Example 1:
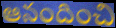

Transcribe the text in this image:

ఆనందించి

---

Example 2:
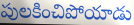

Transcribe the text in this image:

పులకించిపోయాడు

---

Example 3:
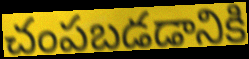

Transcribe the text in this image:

చంపబడడానికి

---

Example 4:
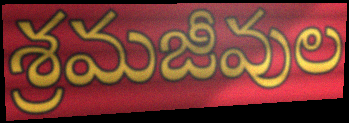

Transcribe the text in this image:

శ్రమజీవుల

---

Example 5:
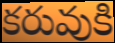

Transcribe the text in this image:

కరువుకి